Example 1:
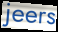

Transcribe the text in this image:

jeers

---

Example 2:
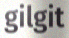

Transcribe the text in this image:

gilgit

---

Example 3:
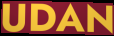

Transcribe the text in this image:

UDAN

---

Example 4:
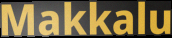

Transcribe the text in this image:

Makkalu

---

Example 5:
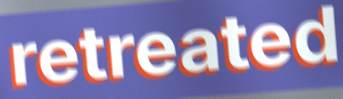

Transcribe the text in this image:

retreated